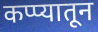
कप्प्यातून